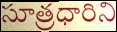
సూత్రధారిని